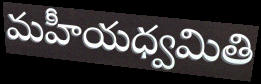
మహీయధ్వమితి